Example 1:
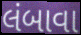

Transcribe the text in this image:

લંબાવા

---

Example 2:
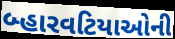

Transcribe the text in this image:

બ્હારવટિયાઓની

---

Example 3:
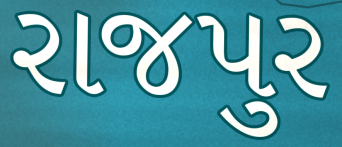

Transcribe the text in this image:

રાજપુર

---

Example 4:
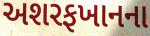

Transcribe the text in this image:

અશરફખાનના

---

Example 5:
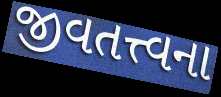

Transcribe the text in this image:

જીવતત્ત્વના